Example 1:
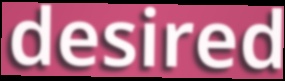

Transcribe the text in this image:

desired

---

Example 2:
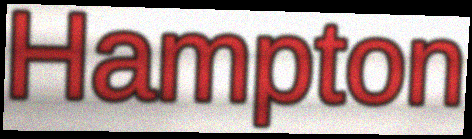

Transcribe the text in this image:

Hampton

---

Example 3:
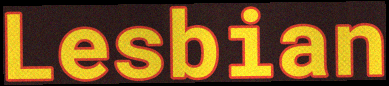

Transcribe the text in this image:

Lesbian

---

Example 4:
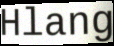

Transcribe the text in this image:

Hlang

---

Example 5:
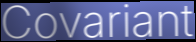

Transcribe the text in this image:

Covariant